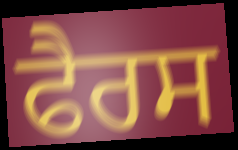
ਫੈਰਸ